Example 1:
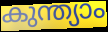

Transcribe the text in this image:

കുന്ത്യാം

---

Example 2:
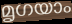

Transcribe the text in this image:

മൃഗയാം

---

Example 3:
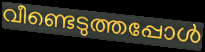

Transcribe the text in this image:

വീണ്ടെടുത്തപ്പോൾ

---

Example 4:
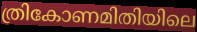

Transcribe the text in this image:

ത്രികോണമിതിയിലെ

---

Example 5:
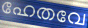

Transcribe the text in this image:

ഹേതവേ